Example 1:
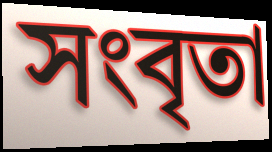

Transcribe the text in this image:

সংবৃতা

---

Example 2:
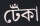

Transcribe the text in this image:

টেঁকা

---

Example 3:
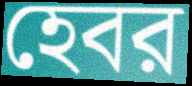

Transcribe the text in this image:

হেবর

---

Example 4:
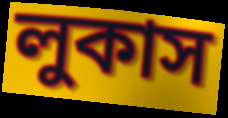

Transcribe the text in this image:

লুকাস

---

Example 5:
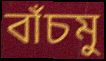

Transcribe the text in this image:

বাঁচমু